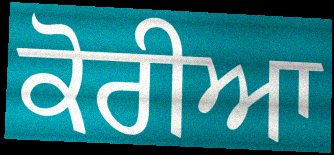
ਕੋਰੀਆ